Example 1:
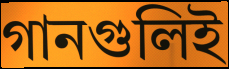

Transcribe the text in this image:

গানগুলিই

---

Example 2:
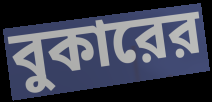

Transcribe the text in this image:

বুকারের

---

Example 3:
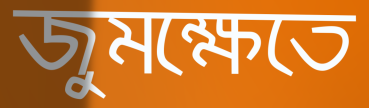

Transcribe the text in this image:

জুমক্ষেতে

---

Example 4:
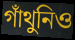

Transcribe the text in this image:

গাঁথুনিও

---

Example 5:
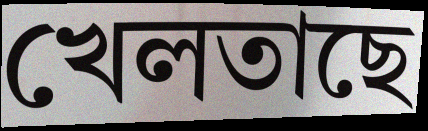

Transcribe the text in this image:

খেলতাছে